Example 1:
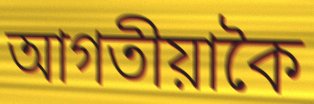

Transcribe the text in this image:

আগতীয়াকৈ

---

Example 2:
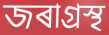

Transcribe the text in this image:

জৰাগ্ৰস্থ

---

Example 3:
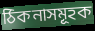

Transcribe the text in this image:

ঠিকনাসমূহক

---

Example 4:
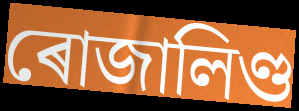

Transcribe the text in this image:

ৰোজালিণ্ড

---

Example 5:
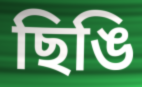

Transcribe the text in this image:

ছিঙি